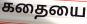
கதையை